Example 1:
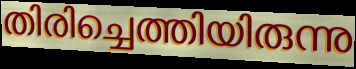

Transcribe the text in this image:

തിരിച്ചെത്തിയിരുന്നു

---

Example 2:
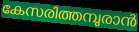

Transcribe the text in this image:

കേസരിത്തമ്പുരാൻ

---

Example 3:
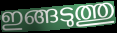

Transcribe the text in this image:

ഇങ്ങടുത്തു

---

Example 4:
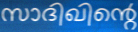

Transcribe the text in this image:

സാദിഖിന്റെ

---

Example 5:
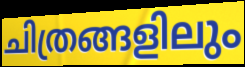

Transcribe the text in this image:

ചിത്രങ്ങളിലും